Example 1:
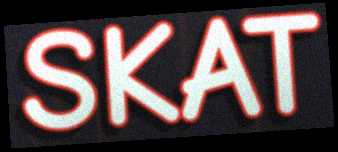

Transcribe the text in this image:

SKAT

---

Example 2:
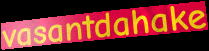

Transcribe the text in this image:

vasantdahake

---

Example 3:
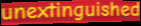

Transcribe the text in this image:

unextinguished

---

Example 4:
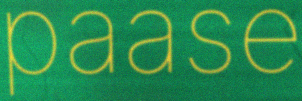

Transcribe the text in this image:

paase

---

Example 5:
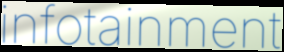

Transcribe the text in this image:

infotainment